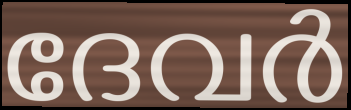
ദേവർ